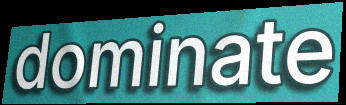
dominate